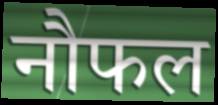
नौफल